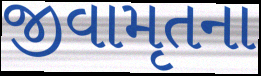
જીવામૃતના